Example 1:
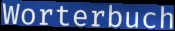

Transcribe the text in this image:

Worterbuch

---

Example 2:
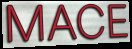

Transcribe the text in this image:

MACE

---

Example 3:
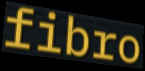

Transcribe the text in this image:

fibro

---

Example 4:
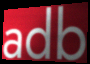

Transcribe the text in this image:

adb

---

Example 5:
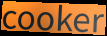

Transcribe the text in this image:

cooker